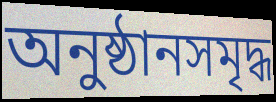
অনুষ্ঠানসমৃদ্ধ